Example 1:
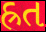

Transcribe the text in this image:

હ્રત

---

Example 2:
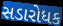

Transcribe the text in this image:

સડારોધક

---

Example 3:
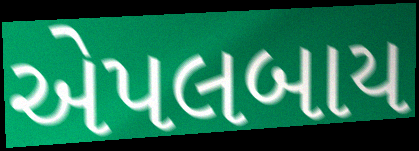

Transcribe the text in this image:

એપલબાય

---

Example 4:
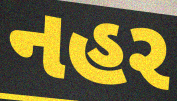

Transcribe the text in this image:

નહર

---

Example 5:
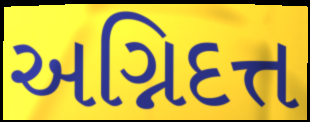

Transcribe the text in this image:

અગ્નિદત્ત